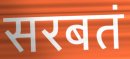
सरबतं